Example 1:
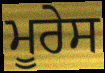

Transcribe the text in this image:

ਮੂਰੇਸ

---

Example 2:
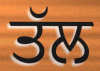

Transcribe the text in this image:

ਤੱਲ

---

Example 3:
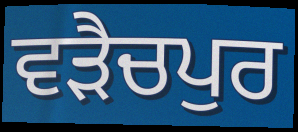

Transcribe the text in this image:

ਵੜੈਚਪੁਰ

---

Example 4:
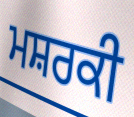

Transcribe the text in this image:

ਮਸ਼ਰਕੀ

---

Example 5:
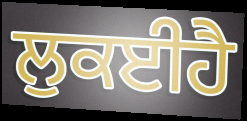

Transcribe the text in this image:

ਲੁਕਈਹੈ